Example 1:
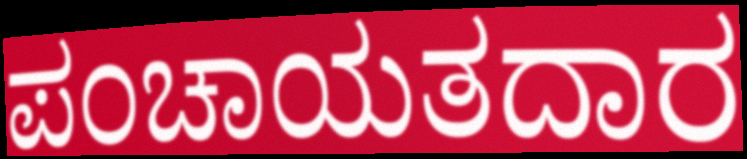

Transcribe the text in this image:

ಪಂಚಾಯತದಾರ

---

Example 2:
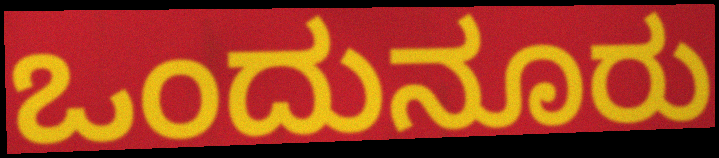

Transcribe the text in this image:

ಒಂದುನೂರು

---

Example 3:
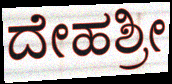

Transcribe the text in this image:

ದೇಹಶ್ರೀ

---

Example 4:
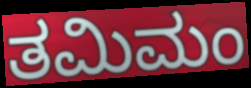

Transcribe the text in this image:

ತಮಿಮಂ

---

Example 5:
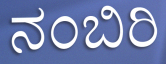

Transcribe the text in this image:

ನಂಬಿರಿ